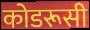
कोडरूसी